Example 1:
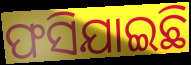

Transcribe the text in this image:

ଫସିଯାଇଛି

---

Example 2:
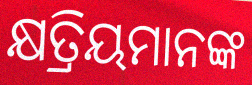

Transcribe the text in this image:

କ୍ଷତ୍ରିୟମାନଙ୍କ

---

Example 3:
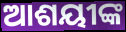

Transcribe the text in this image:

ଆଶୟୀଙ୍କ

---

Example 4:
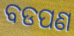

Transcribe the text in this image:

ବଡପଣ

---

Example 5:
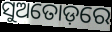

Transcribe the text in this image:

ସୁଅତୋଡ଼ରେ